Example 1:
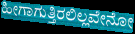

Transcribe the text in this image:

ಹೀಗಾಗುತ್ತಿರಲಿಲ್ಲವೇನೋ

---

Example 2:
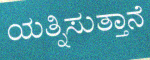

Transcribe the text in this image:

ಯತ್ನಿಸುತ್ತಾನೆ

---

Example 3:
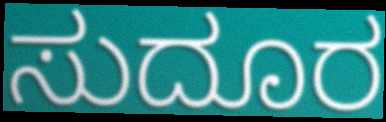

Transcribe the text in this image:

ಸುದೂರ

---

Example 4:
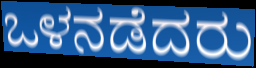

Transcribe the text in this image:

ಒಳನಡೆದರು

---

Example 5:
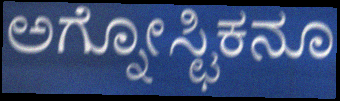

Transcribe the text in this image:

ಅಗ್ನೋಸ್ಟಿಕನೂ